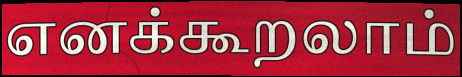
எனக்கூறலாம்